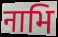
नाभि